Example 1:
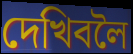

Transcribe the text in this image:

দেখিবলৈ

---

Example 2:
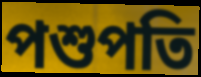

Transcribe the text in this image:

পশুপতি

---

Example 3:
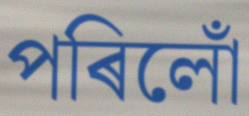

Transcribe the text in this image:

পৰিলোঁ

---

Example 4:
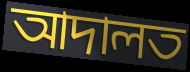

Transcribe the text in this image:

আদালত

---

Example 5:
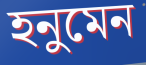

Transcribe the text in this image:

হনুমেন